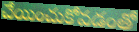
చేయించుకోవడంతో